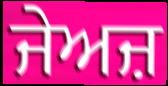
ਜੇਅਜ਼